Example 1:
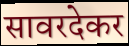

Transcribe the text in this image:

सावरदेकर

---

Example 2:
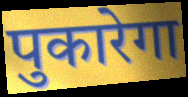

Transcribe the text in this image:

पुकारेगा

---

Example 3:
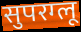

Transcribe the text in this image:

सुपरग्लू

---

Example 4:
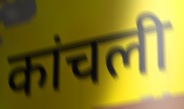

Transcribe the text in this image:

कांचली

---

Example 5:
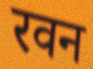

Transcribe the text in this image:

रवन